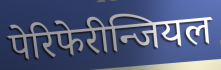
पेरिफेरीन्जियल